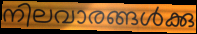
നിലവാരങ്ങൾക്കു